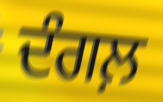
ਦੰਗਲ਼